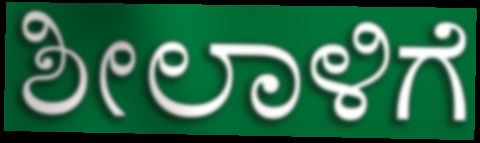
ಶೀಲಾಳಿಗೆ